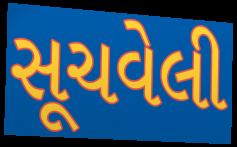
સૂચવેલી